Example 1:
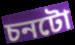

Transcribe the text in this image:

চনটো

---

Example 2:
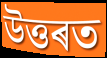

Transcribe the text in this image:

উত্তৰত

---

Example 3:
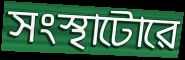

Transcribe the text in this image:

সংস্থাটোৱে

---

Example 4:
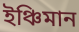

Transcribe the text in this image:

ইঞ্চিমান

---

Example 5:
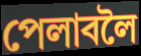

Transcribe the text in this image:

পেলাবলৈ